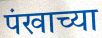
पंखाच्या